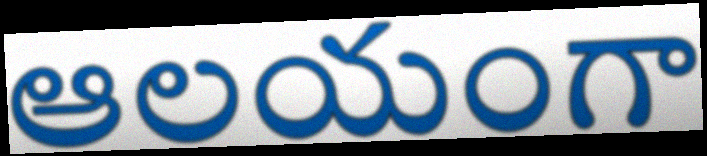
ఆలయంగా